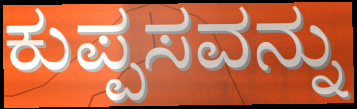
ಕುಪ್ಪಸವನ್ನು